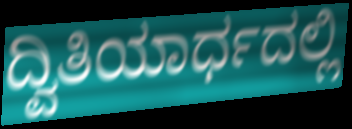
ದ್ವಿತಿಯಾರ್ಧದಲ್ಲಿ